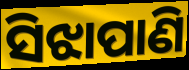
ସିଝାପାଣି